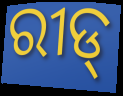
ରୀଡ୍